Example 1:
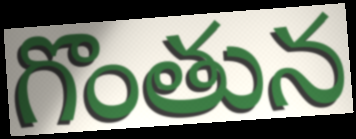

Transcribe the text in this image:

గొంతున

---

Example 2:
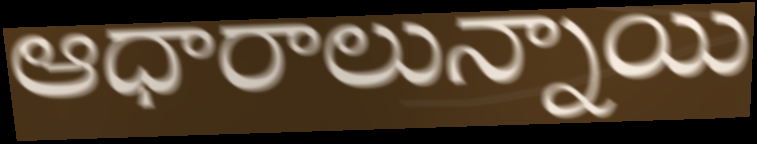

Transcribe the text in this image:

ఆధారాలున్నాయి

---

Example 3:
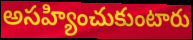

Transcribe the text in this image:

అసహ్యించుకుంటారు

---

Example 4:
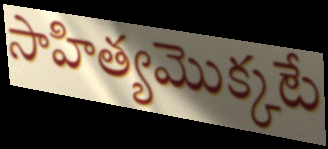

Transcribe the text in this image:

సాహిత్యమొక్కటే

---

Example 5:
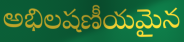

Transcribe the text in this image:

అభిలషణీయమైన